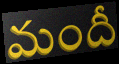
మందీ